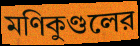
মণিকুণ্ডলের